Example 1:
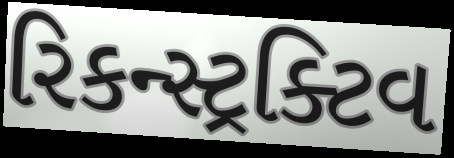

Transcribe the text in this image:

રિકન્સ્ટ્રક્ટિવ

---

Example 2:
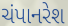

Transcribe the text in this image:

ચંપાનરેશ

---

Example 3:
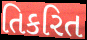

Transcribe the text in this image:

તિકરિત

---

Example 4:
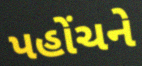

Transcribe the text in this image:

પહોંચને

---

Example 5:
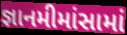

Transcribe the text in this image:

જ્ઞાનમીમાંસામાં